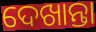
ଦେଖାନ୍ତା